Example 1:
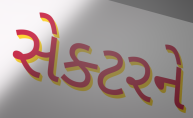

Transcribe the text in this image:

સેક્ટરને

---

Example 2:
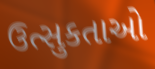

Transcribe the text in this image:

ઉત્સુકતાઓ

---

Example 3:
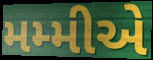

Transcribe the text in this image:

મમ્મીએ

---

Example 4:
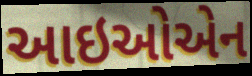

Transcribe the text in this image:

આઇઓએન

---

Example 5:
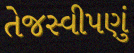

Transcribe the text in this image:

તેજસ્વીપણું